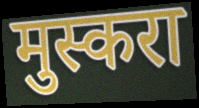
मुस्करा